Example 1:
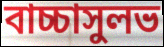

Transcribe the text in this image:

বাচ্চাসুলভ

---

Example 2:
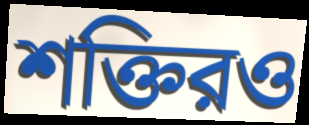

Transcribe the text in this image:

শক্তিরও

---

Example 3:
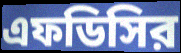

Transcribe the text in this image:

এফডিসির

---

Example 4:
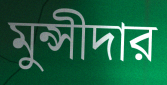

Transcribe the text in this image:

মুন্সীদার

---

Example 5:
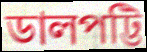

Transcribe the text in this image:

ডালপট্টি